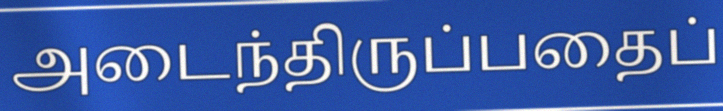
அடைந்திருப்பதைப்